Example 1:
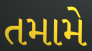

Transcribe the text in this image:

તમામે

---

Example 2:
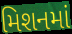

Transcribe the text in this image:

મિશનમાં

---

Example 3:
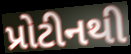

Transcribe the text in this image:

પ્રોટીનથી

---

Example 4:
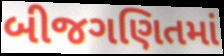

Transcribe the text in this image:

બીજગણિતમાં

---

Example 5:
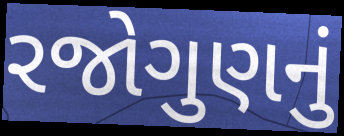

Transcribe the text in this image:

રજોગુણનું